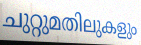
ചുറ്റുമതിലുകളും